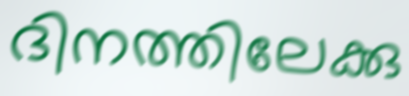
ദിനത്തിലേക്കു